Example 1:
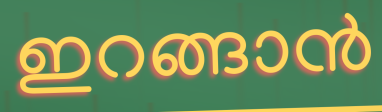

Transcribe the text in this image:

ഇറങ്ങാൻ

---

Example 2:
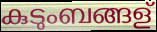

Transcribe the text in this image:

കുടുംബങ്ങള്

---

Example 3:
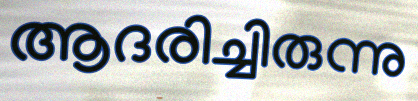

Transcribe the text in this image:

ആദരിച്ചിരുന്നു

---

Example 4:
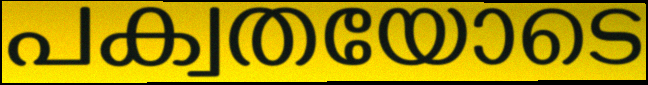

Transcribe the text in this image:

പക്വതയോടെ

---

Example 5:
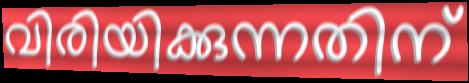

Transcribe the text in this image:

വിരിയിക്കുന്നതിന്